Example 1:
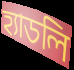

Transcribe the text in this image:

হ্যাডলি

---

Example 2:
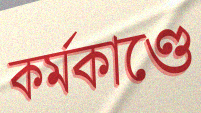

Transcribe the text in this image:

কর্মকাণ্ডে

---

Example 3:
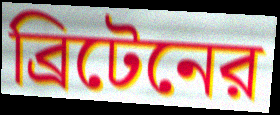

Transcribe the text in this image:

ব্রিটেনের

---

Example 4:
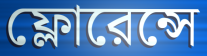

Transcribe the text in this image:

ফ্লোরেন্সে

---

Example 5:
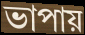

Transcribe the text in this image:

ভাপায়